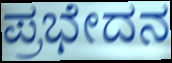
ಪ್ರಭೇದನ